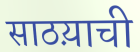
साठय़ाची